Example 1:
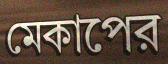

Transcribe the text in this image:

মেকাপের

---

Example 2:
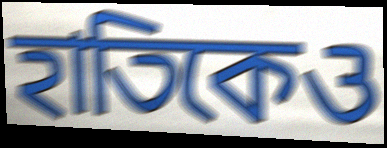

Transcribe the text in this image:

হাতিকেও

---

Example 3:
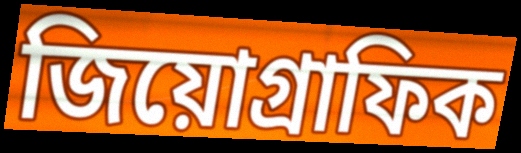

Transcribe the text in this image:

জিয়োগ্রাফিক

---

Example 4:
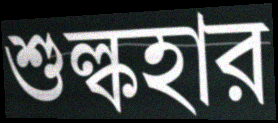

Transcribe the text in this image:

শুল্কহার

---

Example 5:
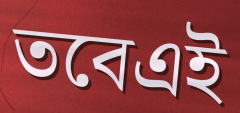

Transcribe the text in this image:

তবেএই